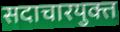
सदाचारयुक्त